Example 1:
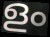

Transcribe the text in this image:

ളം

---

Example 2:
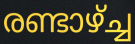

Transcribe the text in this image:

രണ്ടാഴ്ച്ച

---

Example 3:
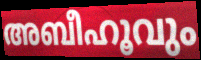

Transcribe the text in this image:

അബീഹൂവും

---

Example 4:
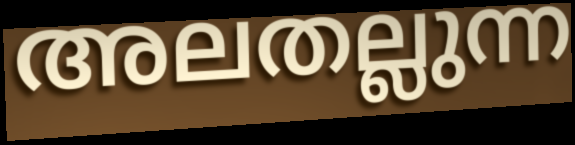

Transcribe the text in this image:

അലതല്ലുന്ന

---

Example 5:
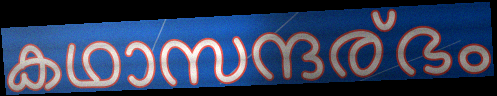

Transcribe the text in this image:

കഥാസന്ദര്ഭം